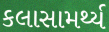
કલાસામર્થ્ય